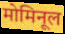
मोमिनूल